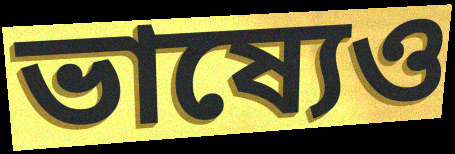
ভাষ্যেও